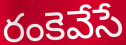
రంకెవేసే